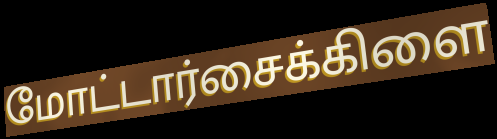
மோட்டார்சைக்கிளை